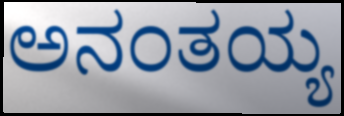
ಅನಂತಯ್ಯ